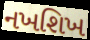
નખશિખ